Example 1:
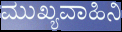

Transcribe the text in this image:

ಮುಖ್ಯವಾಹಿನಿ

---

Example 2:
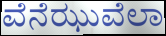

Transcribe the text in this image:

ವೆನೆಝುವೆಲಾ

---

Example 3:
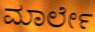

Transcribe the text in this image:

ಮಾರ್ಲೇ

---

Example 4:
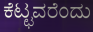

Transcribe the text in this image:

ಕೆಟ್ಟವರೆಂದು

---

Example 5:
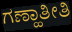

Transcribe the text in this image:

ಗಣ್ಹಾತೀತಿ